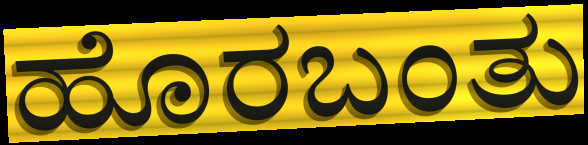
ಹೊರಬಂತು